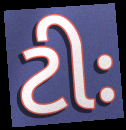
ટીઃ